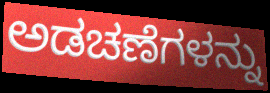
ಅಡಚಣೆಗಳನ್ನು